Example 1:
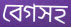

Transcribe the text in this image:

বেগসহ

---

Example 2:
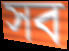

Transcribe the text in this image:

সব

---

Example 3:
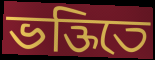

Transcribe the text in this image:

ভক্তিতে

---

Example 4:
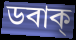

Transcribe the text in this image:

ডবাক্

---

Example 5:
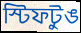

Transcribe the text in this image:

স্টিফটুঙ